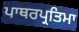
ਪਾਥਰਪ੍ਰਤਿਮਾ